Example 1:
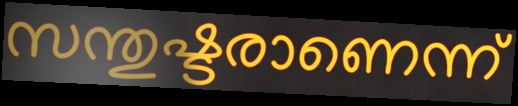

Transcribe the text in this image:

സന്തുഷ്ടരാണെന്ന്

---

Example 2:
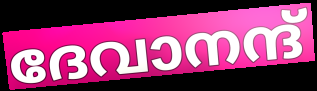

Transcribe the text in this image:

ദേവാനന്ദ്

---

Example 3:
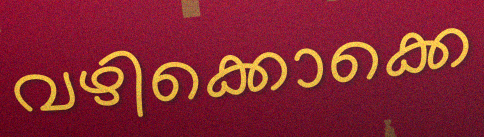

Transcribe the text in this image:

വഴിക്കൊക്കെ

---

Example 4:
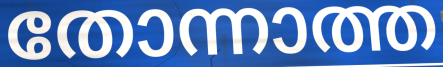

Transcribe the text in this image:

തോന്നാത്ത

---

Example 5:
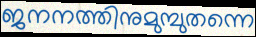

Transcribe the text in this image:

ജനനത്തിനുമുമ്പുതന്നെ